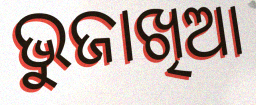
ଭୁଜାଖିଆ